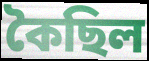
কৈছিল